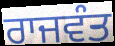
ਰਾਜਵੰਤ